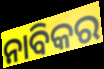
ନାବିକର